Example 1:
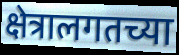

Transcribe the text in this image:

क्षेत्रालगतच्या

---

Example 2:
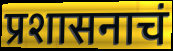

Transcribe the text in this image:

प्रशासनाचं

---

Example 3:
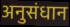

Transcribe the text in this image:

अनुसंधान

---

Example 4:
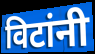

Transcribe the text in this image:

विटांनी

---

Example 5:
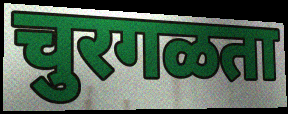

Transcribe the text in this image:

चुरगळता